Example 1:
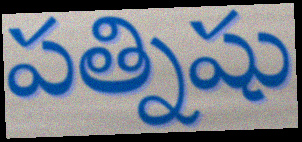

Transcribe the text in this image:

పత్నిషు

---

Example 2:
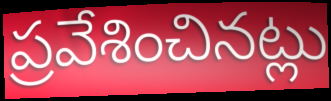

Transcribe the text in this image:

ప్రవేశించినట్లు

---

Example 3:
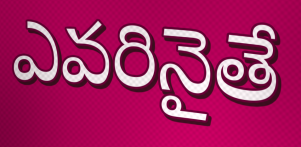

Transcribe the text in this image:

ఎవరినైతే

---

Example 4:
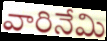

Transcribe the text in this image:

వారినేమి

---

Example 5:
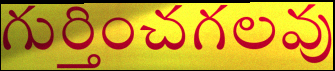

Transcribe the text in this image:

గుర్తించగలవు